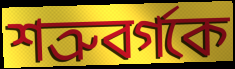
শত্রুবর্গকে